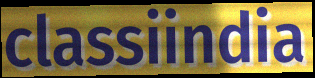
classiindia